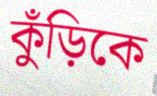
কুঁড়িকে